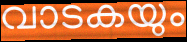
വാടകയും